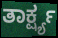
ತಾರ್ಕ್ಷ್ಯ